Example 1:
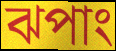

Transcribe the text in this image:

ঝপাং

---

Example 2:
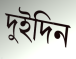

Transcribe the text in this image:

দুইদিন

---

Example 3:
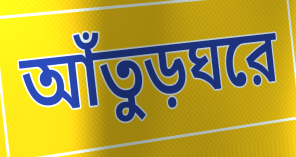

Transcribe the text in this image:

আঁতুড়ঘরে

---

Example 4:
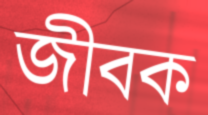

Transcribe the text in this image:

জীবক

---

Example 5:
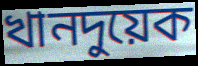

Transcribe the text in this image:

খানদুয়েক